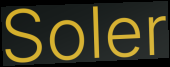
Soler